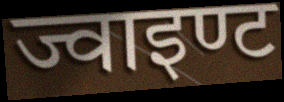
ज्वाइण्ट